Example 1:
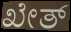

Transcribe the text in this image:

ಖೇತ್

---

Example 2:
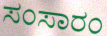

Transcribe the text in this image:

ಸಂಸಾರಂ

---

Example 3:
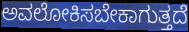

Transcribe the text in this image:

ಅವಲೋಕಿಸಬೇಕಾಗುತ್ತದೆ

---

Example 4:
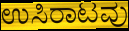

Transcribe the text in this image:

ಉಸಿರಾಟವು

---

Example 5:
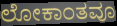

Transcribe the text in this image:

ಲೋಕಾಂತವೂ